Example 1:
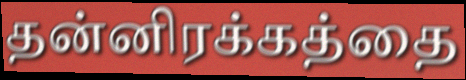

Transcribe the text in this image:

தன்னிரக்கத்தை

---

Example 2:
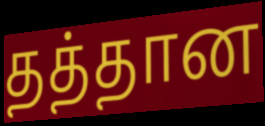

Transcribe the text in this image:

தத்தான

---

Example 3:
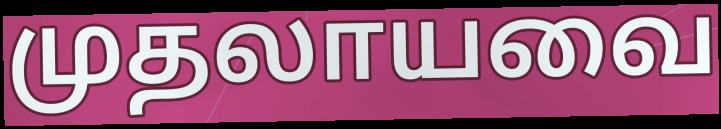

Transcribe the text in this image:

முதலாயவை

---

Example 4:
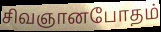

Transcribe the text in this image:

சிவஞானபோதம்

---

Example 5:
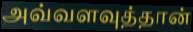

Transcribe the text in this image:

அவ்வளவுத்தான்